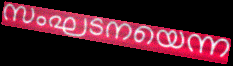
സംഘടനയെന്ന